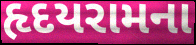
હૃદયરામના